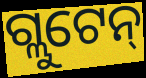
ଗ୍ଲୁଟେନ୍